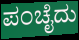
ಪಂಚೈದು